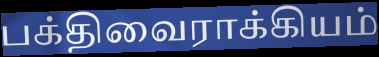
பக்திவைராக்கியம்